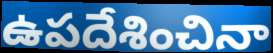
ఉపదేశించినా